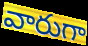
వారుగా